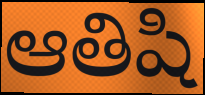
ఆతిషి